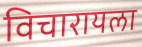
विचारायला